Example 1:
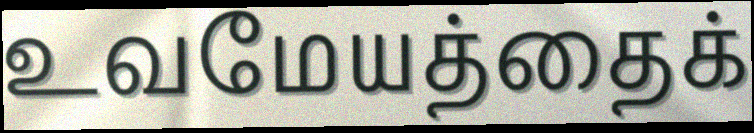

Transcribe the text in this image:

உவமேயத்தைக்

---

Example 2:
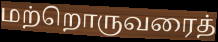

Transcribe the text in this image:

மற்றொருவரைத்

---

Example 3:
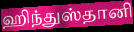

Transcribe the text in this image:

ஹிந்துஸ்தானி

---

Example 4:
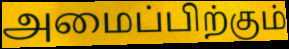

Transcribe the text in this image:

அமைப்பிற்கும்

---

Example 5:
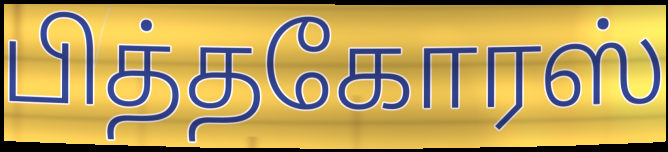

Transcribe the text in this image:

பித்தகோரஸ்